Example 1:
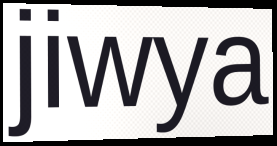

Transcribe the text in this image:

jiwya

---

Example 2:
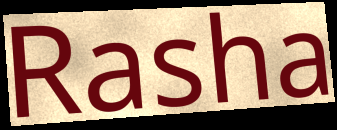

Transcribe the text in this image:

Rasha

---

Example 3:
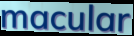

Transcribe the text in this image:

macular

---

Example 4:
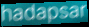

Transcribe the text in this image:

hadapsar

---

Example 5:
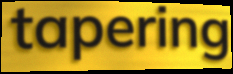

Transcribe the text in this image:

tapering